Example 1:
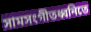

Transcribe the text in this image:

সামসংগীতধ্বনিতে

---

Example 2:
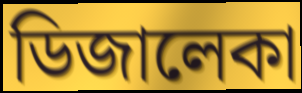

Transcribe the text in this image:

ডিজালেকা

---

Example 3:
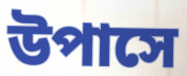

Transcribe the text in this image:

উপাসে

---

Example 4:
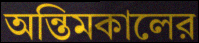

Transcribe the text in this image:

অন্তিমকালের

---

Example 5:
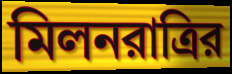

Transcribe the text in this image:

মিলনরাত্রির